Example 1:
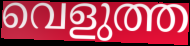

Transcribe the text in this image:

വെളുത്ത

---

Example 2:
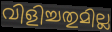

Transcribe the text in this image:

വിളിച്ചതുമില്ല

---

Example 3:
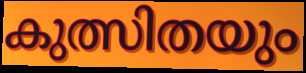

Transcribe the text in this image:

കുത്സിതയും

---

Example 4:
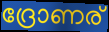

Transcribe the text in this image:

ദ്രോണര്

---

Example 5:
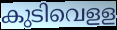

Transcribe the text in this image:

കുടിവെളള